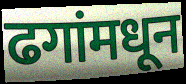
ढगांमधून